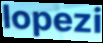
lopezi